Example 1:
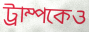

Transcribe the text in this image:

ট্রাম্পকেও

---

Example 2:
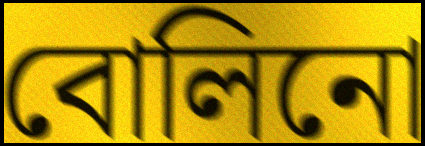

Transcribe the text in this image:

বোলিনো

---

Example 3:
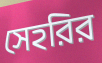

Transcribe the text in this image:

সেহরির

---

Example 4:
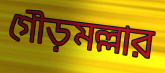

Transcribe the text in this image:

গৌড়মল্লার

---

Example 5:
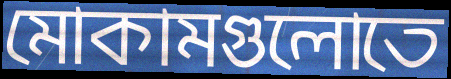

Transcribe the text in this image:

মোকামগুলোতে